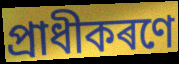
প্ৰাধীকৰণে